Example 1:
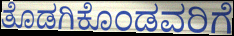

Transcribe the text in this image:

ತೊಡಗಿಕೊಂಡವರಿಗೆ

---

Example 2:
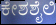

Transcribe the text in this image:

ಕೇಶಶೈಲಿ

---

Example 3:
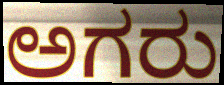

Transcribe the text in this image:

ಅಗರು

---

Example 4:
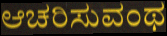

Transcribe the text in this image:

ಆಚರಿಸುವಂಥ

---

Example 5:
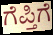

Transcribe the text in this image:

ಗೆಪ್ತಿಗೆ